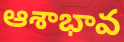
ఆశాభావ